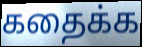
கதைக்க